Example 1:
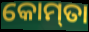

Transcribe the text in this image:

କୋମ୍‌ତା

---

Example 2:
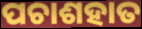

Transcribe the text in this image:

ପଚାଶହାତ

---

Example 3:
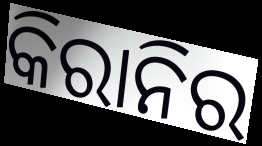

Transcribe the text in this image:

କିରାନିର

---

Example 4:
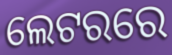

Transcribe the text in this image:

ଲେଟରରେ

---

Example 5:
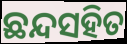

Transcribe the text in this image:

ଛନ୍ଦସହିତ